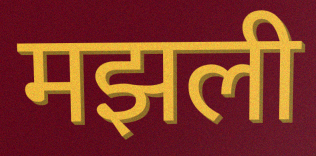
मझली